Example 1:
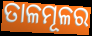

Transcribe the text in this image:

ତାଳମୂଳର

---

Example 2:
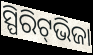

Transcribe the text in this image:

ସ୍ପିରିଟ୍‌ଭିଜା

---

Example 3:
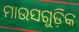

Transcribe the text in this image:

ମାଉସଗୁଡ଼ିକ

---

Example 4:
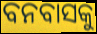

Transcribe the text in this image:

ବନବାସକୁ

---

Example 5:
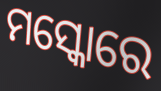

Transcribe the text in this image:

ମସ୍କୋରେ